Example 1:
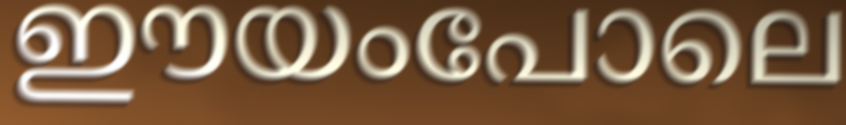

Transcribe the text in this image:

ഈയംപോലെ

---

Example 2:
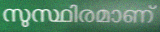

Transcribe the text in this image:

സുസ്ഥിരമാണ്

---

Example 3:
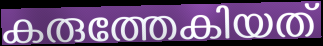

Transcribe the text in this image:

കരുത്തേകിയത്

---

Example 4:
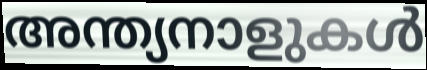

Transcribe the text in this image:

അന്ത്യനാളുകൾ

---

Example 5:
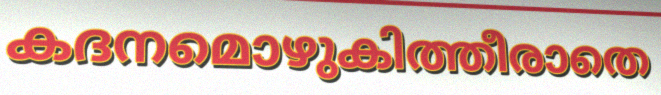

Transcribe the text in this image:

കദനമൊഴുകിത്തീരാതെ